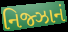
નિજ્ઝાનં